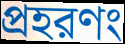
প্রহরণং